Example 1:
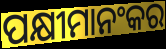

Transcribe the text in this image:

ପକ୍ଷୀମାନଂକର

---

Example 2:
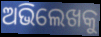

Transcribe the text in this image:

ଅଭିଲେଖକୁ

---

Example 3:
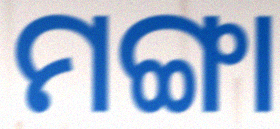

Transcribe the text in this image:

ମଙ୍ଗା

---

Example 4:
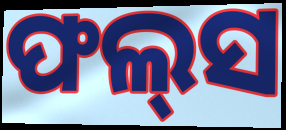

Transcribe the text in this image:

ଫଲ୍‍ସ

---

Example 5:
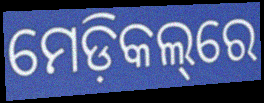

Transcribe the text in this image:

ମେଡ଼ିକଲ୍‌ରେ